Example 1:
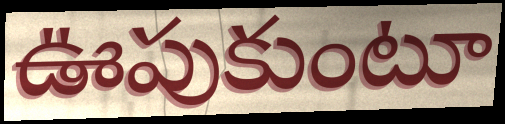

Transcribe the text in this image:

ఊపుకుంటూ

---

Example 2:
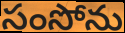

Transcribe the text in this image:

సంసోను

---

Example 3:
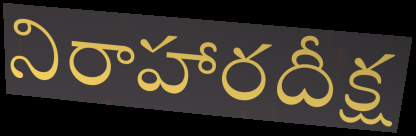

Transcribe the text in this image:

నిరాహారదీక్ష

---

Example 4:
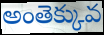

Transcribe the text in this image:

అంతెక్కువ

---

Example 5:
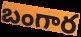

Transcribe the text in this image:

బంగార